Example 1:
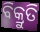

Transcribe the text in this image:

ବିକ୍ରୁତି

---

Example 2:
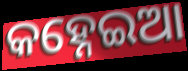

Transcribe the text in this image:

କହ୍ନେଇଆ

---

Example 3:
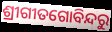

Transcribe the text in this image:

ଶ୍ରୀଗୀତଗୋବିନ୍ଦରୁ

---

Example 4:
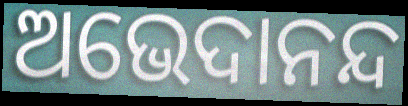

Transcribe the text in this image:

ଅଭେଦାନନ୍ଦ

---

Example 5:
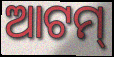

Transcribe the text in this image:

ଆଟମ୍